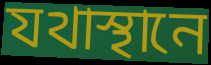
যথাস্থানে